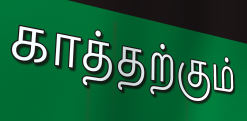
காத்தற்கும்